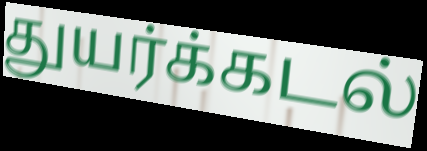
துயர்க்கடல்